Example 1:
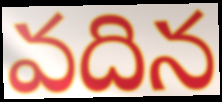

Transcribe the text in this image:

వదిన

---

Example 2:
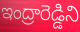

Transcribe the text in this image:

ఇంద్రారెడ్డిని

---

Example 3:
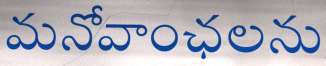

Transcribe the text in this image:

మనోవాంఛలను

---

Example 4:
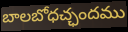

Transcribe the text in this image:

బాలబోధచ్ఛందము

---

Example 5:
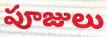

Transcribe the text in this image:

పూజులు